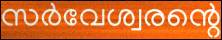
സർവേശ്വരന്റെ